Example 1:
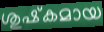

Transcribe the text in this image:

ശുഷ്‌കമായ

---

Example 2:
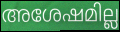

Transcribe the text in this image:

അശേഷമില്ല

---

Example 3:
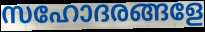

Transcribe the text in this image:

സഹോദരങ്ങളേ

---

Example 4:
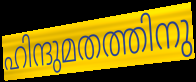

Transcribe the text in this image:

ഹിന്ദുമതത്തിനു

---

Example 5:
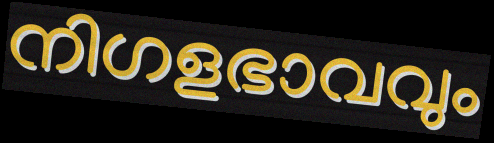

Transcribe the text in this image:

നിഗളഭാവവും